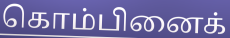
கொம்பினைக்